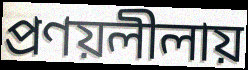
প্রণয়লীলায়